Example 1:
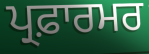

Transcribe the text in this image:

ਪ੍ਰਫ਼ਾਰਮਰ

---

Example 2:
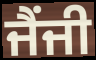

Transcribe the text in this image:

ਜੈਂਜੀ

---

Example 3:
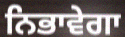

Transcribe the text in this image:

ਨਿਭਾਵੇਗਾ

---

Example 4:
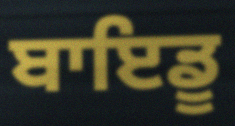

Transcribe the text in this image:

ਬਾਇਡੂ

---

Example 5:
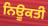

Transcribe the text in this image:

ਨਿਊਕਤੀ